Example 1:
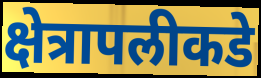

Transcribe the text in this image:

क्षेत्रापलीकडे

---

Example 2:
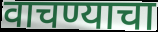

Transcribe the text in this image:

वाचण्याचा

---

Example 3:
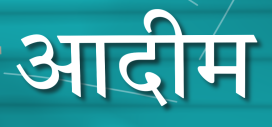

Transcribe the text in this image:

आदीम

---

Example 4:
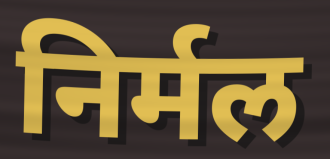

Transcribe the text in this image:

निर्मल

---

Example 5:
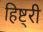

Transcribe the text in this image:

हिष्ट्री